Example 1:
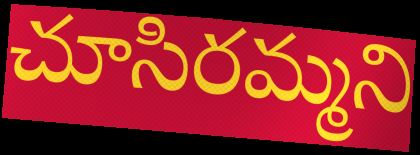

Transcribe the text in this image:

చూసిరమ్మని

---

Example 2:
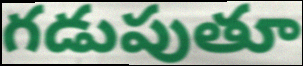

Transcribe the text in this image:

గడుపుతూ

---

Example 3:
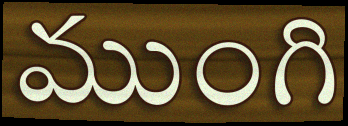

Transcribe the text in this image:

ముంగి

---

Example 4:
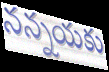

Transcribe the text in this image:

నన్నయకు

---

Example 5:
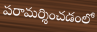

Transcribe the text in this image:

పరామర్శించడంలో